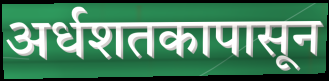
अर्धशतकापासून